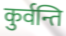
कुर्वन्ति